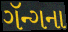
ગૅન્ગના